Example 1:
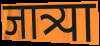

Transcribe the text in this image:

जात्र्या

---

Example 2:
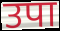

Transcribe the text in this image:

उपा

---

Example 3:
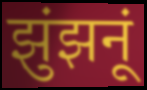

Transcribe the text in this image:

झुंझनूं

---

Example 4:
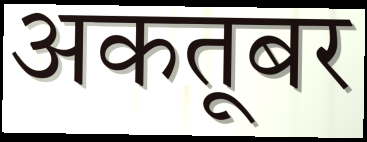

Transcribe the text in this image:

अकतूबर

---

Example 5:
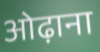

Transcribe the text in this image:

ओढ़ाना